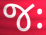
જઃ